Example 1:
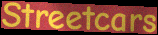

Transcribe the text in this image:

Streetcars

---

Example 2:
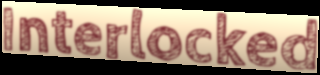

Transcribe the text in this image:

Interlocked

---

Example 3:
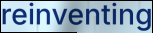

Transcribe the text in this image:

reinventing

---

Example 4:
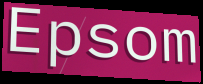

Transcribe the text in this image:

Epsom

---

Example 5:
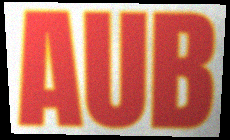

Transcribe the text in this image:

AUB